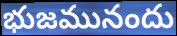
భుజమునందు